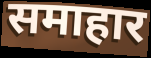
समाहार